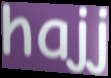
hajj